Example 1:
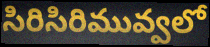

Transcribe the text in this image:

సిరిసిరిమువ్వలో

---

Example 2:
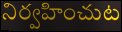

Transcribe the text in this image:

నిర్వహించుట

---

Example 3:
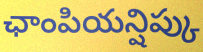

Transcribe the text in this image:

ఛాంపియన్షిప్కు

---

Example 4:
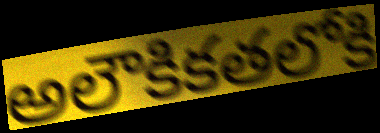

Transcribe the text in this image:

అలౌకికతలోకి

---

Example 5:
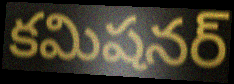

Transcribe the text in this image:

కమిషనర్